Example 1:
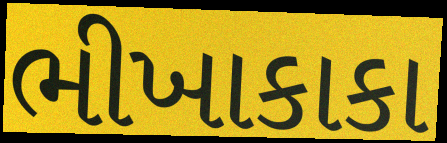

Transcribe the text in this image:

ભીખાકાકા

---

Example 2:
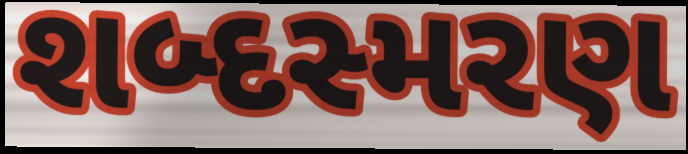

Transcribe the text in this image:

શબ્દસ્મરણ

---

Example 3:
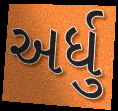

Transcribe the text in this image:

અર્ધુ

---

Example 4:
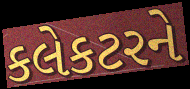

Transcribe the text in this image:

કલેકટરને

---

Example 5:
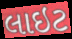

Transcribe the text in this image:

લાઇટ